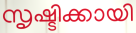
സൃഷ്ടിക്കായി